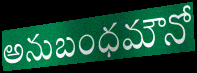
అనుబంధమౌనో